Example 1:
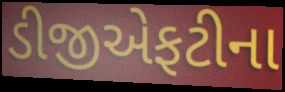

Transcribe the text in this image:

ડીજીએફટીના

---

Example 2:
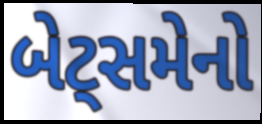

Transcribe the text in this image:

બેટ્સમેનો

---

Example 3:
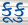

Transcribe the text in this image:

કૂકુ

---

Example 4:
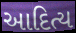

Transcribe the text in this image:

આદિત્ય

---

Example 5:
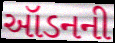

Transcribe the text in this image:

ઑડનની